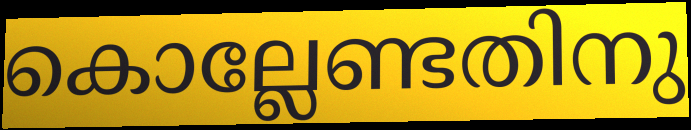
കൊല്ലേണ്ടതിനു